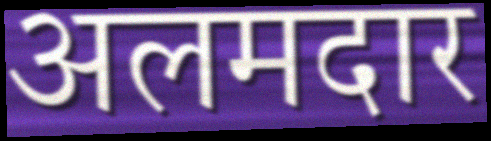
अलमदार